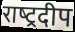
राष्ट्रदीप